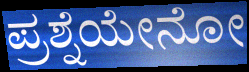
ಪ್ರಶ್ನೆಯೇನೋ